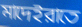
মাদেইরাতে